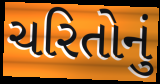
ચરિતોનું